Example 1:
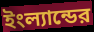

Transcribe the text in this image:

ইংল্যান্ডের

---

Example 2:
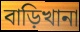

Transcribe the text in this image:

বাড়িখানা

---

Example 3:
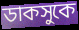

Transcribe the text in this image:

ডাকসুকে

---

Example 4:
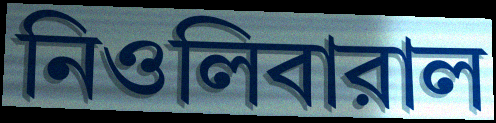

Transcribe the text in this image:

নিওলিবারাল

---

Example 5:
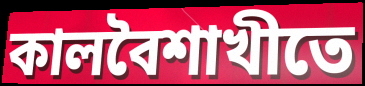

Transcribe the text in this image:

কালবৈশাখীতে